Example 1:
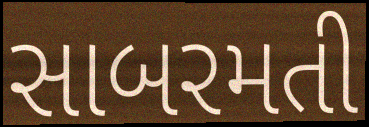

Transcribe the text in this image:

સાબરમતી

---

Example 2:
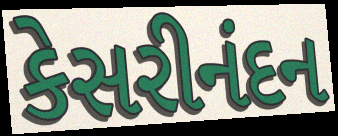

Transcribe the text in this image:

કેસરીનંદન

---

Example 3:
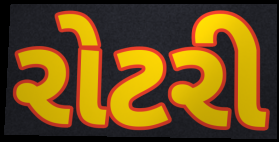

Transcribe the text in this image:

રોટરી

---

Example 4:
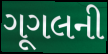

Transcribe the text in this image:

ગૂગલની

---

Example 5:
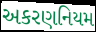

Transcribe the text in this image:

અકરણનિયમ